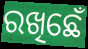
ରଖିଛେଁ